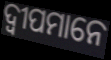
ଦ୍ୱୀପମାନେ